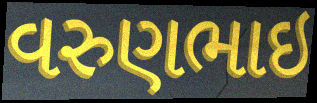
વરુણભાઇ